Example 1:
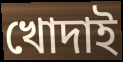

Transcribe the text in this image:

খোদাই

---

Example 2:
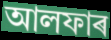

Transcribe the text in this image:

আলফাৰ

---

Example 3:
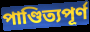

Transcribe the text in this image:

পাণ্ডিত্যপূৰ্ণ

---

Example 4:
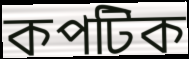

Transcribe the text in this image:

কপটিক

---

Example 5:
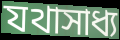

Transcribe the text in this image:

যথাসাধ্য